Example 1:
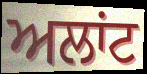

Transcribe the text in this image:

ਅਲਾਂਟ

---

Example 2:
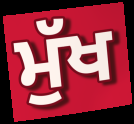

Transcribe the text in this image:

ਮੁੱਖ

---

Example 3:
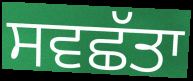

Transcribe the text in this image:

ਸਵਛੱਤਾ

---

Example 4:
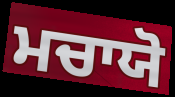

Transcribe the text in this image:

ਮਚਾਯੋ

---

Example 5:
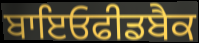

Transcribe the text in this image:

ਬਾਇਓਫੀਡਬੈਕ